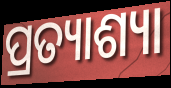
ପ୍ରତ୍ୟାଶ୍ୟା